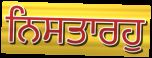
ਨਿਸਤਾਰਹੁ